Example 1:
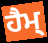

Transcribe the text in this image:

ਹੈਮ੍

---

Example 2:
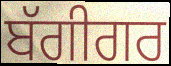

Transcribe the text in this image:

ਬੱਗੀਗਰ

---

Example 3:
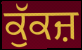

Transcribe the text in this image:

ਕੁੱਕਜ਼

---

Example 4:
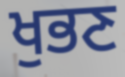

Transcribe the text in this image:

ਖੁਭਣ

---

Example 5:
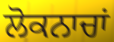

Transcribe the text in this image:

ਲੋਕਨਾਚਾਂ